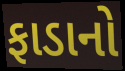
ફાડાનો